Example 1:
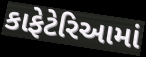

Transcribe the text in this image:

કાફેટેરિઆમાં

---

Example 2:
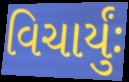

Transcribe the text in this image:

વિચાર્યુંઃ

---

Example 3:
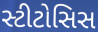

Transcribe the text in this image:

સ્ટીટોસિસ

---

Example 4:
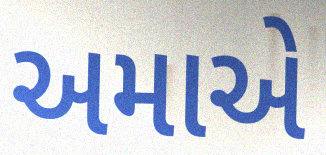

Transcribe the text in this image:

અમાએ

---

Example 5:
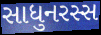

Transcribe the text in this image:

સાધુનરસ્સ